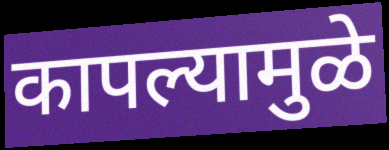
कापल्यामुळे